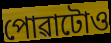
পোৱাটোও